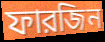
ফারজিন